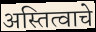
अस्तित्वाचे